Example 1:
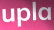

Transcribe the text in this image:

upla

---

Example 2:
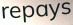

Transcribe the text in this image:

repays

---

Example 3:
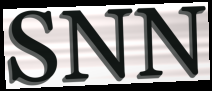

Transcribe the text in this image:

SNN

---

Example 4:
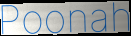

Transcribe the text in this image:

Poonah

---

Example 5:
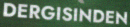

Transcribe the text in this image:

DERGISINDEN